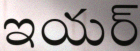
ఇయర్